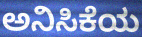
ಅನಿಸಿಕೆಯ